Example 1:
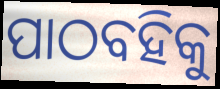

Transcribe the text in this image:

ପାଠବହିକୁ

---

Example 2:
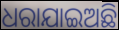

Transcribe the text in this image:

ଧରାଯାଇଅଛି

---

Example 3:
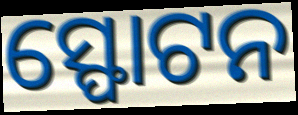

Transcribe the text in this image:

ସ୍ଫୋଟନ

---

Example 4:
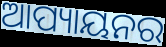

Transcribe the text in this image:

ଆପ୍ୟାୟନର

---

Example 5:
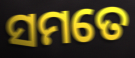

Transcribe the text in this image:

ସମତେ